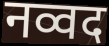
नव्वद